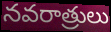
నవరాత్రులు